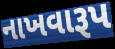
નાખવારૂપ